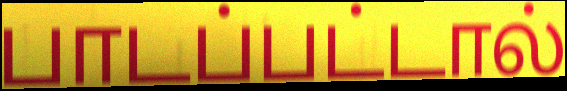
பாடப்பட்டால்